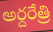
అర్దరేత్రి